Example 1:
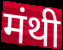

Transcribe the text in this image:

मंथी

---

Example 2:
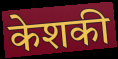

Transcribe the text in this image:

केशकी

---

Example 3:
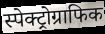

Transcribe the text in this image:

स्पेक्ट्रोग्राफिक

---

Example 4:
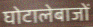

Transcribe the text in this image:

घोटालेबाजों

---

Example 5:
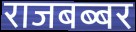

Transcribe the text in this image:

राजबब्बर